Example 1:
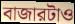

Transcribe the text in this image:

বাজারটাও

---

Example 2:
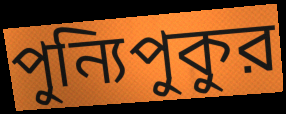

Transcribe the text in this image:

পুন্যিপুকুর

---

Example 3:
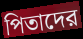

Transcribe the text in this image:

পিতাদের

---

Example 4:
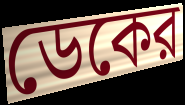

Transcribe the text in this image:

ডেকের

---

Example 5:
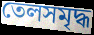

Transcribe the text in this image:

তেলসমৃদ্ধ